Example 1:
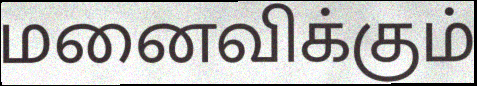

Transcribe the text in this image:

மனைவிக்கும்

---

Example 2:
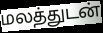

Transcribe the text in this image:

மலத்துடன்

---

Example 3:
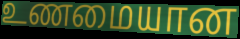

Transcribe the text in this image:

உணமையான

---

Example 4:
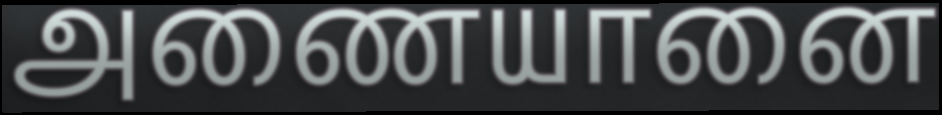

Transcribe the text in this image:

அணையானை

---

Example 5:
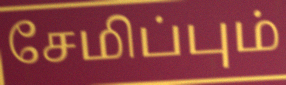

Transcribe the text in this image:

சேமிப்பும்